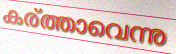
കര്ത്താവെന്നു